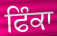
ਫਿੰਕਾ